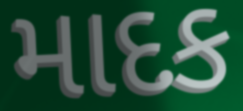
માદક